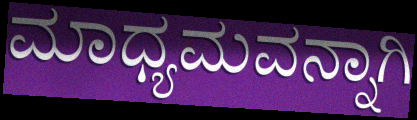
ಮಾಧ್ಯಮವನ್ನಾಗಿ